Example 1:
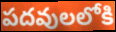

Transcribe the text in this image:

పదవులలోకి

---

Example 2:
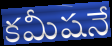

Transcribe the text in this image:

కమీషనే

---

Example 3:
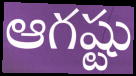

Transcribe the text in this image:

ఆగష్టు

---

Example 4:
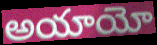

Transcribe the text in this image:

అయాయో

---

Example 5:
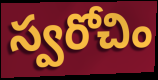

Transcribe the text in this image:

స్వరోచిం